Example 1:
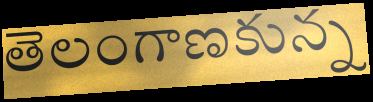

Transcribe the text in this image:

తెలంగాణకున్న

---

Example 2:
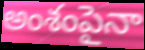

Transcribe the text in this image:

అంశంపైనా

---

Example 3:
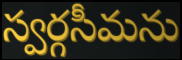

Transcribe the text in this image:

స్వర్గసీమను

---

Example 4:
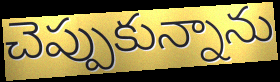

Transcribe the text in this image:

చెప్పుకున్నాను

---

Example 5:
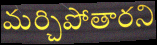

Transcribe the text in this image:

మర్చిపోతారని